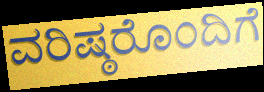
ವರಿಷ್ಠರೊಂದಿಗೆ